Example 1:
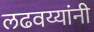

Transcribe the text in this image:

लढवय्यांनी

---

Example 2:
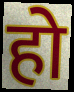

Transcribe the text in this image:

हो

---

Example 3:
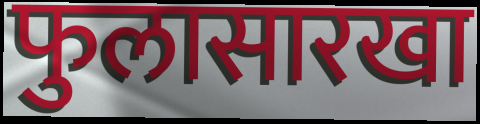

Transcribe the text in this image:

फुलासारखा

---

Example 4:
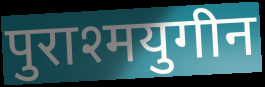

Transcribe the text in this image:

पुराश्मयुगीन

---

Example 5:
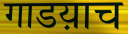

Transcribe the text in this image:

गाडय़ाच